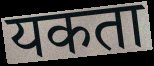
यकता